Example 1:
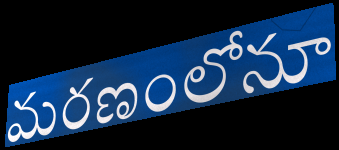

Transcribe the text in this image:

మరణంలోనూ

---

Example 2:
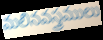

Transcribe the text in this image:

మలినవస్త్రములు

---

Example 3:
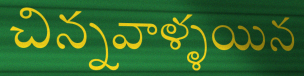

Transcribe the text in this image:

చిన్నవాళ్ళయిన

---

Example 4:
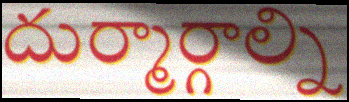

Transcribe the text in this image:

దుర్మార్గాల్ని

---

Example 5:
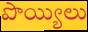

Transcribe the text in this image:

పొయ్యిలు